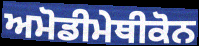
ਅਮੋਡੀਮੇਥੀਕੋਨ